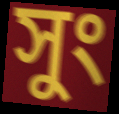
সুং